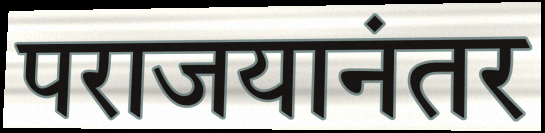
पराजयानंतर